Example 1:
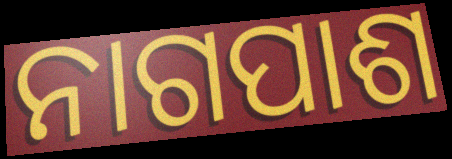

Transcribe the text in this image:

ନାଗପାଶ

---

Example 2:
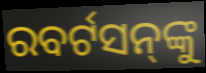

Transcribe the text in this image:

ରବର୍ଟସନ୍‌ଙ୍କୁ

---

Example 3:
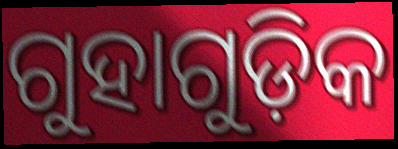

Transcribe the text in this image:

ଗୁହାଗୁଡ଼ିକ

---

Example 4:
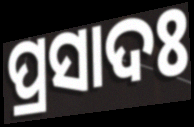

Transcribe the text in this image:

ପ୍ରସାଦଃ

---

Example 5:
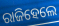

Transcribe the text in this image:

ରାଜିହେଲେ